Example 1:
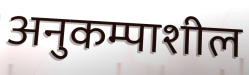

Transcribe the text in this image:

अनुकम्पाशील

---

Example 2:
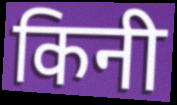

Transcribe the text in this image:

किनी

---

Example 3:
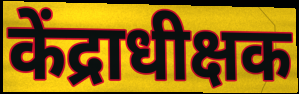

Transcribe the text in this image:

केंद्राधीक्षक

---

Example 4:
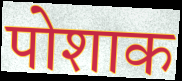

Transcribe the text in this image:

पोशाक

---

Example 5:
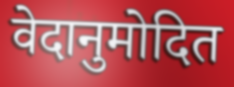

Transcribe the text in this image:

वेदानुमोदित